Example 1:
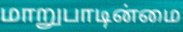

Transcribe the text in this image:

மாறுபாடின்மை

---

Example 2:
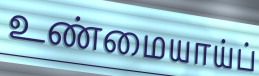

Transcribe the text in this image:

உண்மையாய்ப்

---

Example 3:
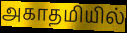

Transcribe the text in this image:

அகாதமியில்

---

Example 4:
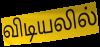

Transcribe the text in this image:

விடியலில்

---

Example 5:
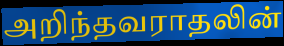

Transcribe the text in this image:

அறிந்தவராதலின்